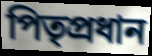
পিতৃপ্রধান